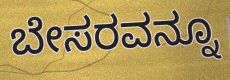
ಬೇಸರವನ್ನೂ